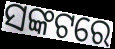
ସଙ୍କଟରେ